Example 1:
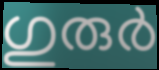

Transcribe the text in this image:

ഗുരുർ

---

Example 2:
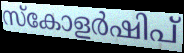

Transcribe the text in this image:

സ്കോളർഷിപ്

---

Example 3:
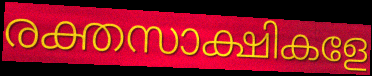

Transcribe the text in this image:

രക്തസാക്ഷികളേ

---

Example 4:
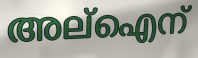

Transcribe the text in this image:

അല്ഐന്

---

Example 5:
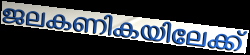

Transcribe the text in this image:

ജലകണികയിലേക്ക്